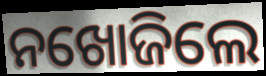
ନଖୋଜିଲେ